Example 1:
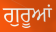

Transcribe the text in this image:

ਗੁਰੂਆਂ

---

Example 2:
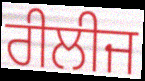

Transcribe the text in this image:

ਰੀਲੀਜ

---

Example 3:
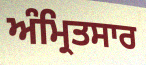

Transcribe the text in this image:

ਅੰਮ੍ਰਿਤਸਾਰ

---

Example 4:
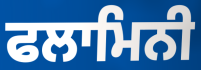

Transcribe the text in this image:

ਫਲਾਮਿਨੀ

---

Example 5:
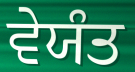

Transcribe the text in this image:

ਵੇਯੰਤ